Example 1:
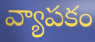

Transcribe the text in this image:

వ్యాపకం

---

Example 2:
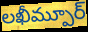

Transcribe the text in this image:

లఖీమ్పూర్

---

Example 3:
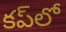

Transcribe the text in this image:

కప్‌లో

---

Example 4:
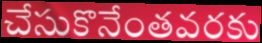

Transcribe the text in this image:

చేసుకొనేంతవరకు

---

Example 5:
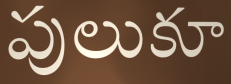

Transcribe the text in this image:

పులుకూ